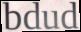
bdud